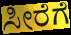
ಸೀರೆಗೆ